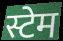
स्टेम